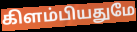
கிளம்பியதுமே